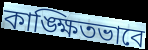
কাঙ্ক্ষিতভাবে